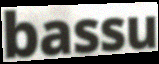
bassu